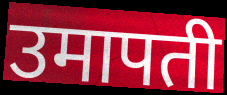
उमापती